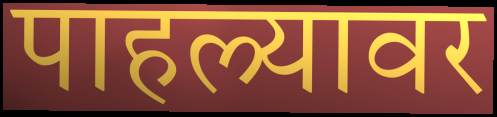
पाहल्यावर